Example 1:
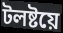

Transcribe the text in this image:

টলষ্টয়ে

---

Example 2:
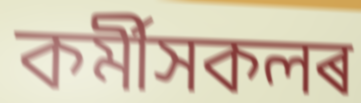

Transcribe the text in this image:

কৰ্মীসকলৰ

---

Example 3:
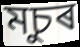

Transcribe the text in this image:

মচুৰ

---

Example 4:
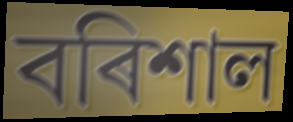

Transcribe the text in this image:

বৰিশাল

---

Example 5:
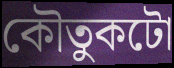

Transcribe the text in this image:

কৌতুকটো